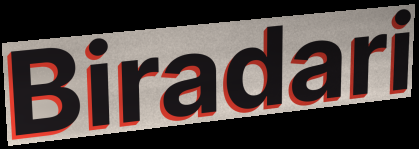
Biradari